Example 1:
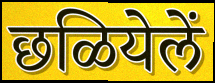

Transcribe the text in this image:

छळियेलें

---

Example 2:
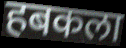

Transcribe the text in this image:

हबकला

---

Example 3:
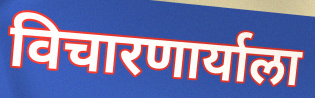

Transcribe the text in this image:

विचारणार्याला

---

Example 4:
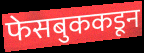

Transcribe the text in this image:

फेसबुककडून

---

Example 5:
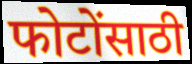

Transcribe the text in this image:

फोटोंसाठी